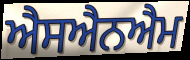
ਐਸਐਨਐਮ